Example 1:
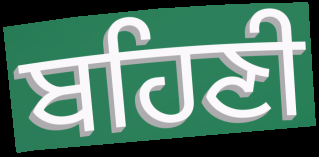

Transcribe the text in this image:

ਬਹਿਣੀ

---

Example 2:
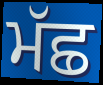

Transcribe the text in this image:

ਮੱਛ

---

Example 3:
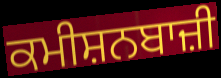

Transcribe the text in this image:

ਕਮੀਸ਼ਨਬਾਜ਼ੀ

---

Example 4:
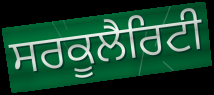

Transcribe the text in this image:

ਸਰਕੂਲੈਰਿਟੀ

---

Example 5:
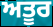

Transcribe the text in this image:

ਅਤੂਰ